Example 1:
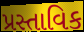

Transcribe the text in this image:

પ્રસ્તાવિક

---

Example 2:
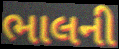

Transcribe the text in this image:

ભાલની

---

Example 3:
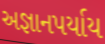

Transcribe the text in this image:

અજ્ઞાનપર્યાય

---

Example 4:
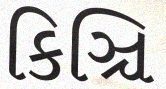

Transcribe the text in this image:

કિઞ્ચિ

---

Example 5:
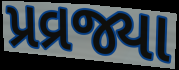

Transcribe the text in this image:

પ્રવ્રજ્યા